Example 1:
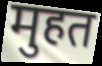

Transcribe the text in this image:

मुहत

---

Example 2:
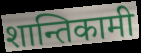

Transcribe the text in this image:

शान्तिकामी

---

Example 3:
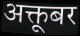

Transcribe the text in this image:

अक्तूबर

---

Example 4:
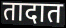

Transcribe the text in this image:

तादात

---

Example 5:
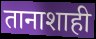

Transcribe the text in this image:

तानाशाही